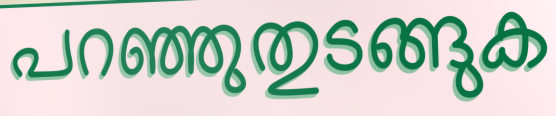
പറഞ്ഞുതുടങ്ങുക